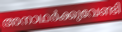
അനാഥർക്കുവേണ്ടി